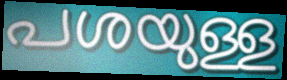
പശയുള്ള